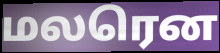
மலரென